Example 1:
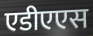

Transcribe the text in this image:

एडीएएस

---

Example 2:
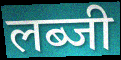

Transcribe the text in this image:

लब्जी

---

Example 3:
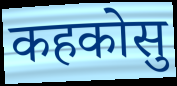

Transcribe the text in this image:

कहकोसु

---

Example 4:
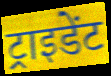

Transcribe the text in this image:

ट्राइडेंट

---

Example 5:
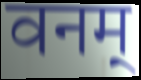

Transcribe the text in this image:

वनम्